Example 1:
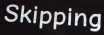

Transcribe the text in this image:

Skipping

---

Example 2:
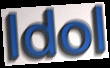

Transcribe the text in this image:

Idol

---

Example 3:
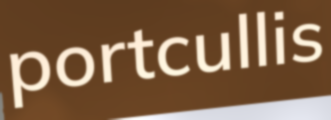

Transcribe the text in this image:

portcullis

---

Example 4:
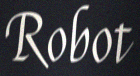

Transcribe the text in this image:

Robot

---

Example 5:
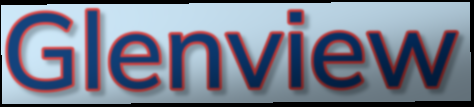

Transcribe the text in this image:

Glenview